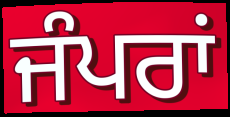
ਜੰਪਰਾਂ